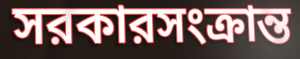
সরকারসংক্রান্ত